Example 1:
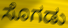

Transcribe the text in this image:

ಸೊಗಡು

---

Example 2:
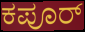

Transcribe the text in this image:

ಕಪೂರ್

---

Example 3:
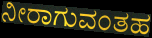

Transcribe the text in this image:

ನೀರಾಗುವಂತಹ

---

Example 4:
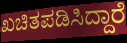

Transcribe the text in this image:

ಖಚಿತಪಡಿಸಿದ್ದಾರೆ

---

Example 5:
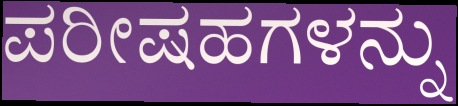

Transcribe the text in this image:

ಪರೀಷಹಗಳನ್ನು